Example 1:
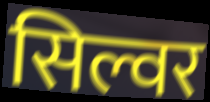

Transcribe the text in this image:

सिल्‍वर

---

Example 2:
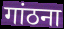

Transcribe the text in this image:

गांठना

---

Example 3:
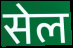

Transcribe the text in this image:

सेल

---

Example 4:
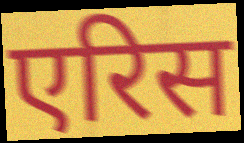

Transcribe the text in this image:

एरिस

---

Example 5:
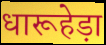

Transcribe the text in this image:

धारूहेड़ा